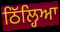
ਠਿੱਲ੍ਹਿਆ